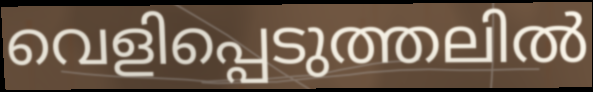
വെളിപ്പെടുത്തലിൽ